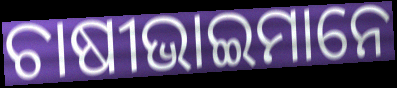
ଚାଷୀଭାଇମାନେ